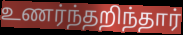
உணர்ந்தறிந்தார்